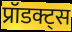
प्रॉडक्ट्स